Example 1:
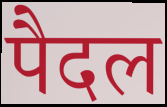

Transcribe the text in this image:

पैदल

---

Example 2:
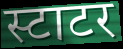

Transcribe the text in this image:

स्टाटर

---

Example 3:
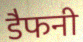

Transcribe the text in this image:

डैफनी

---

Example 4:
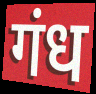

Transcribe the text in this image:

गंध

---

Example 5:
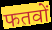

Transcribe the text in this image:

फतवों